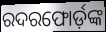
ରଦରଫୋର୍ଡ଼ଙ୍କ